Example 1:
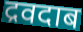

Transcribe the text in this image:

द्रवदाब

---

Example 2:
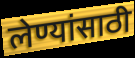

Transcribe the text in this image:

लेण्यांसाठी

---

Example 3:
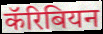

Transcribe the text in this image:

कॅरिबियन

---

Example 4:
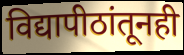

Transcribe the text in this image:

विद्यापीठांतूनही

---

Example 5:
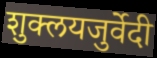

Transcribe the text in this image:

शुक्लयजुर्वेदी